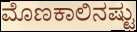
ಮೊಣಕಾಲಿನಷ್ಟು